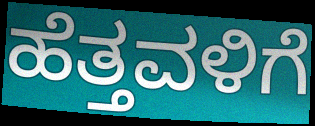
ಹೆತ್ತವಳಿಗೆ